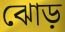
ঝোড়